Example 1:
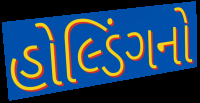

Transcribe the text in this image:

હોલ્ડિંગનો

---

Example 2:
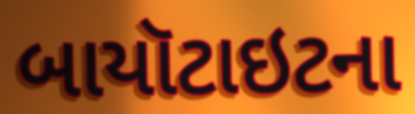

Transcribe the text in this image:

બાયૉટાઇટના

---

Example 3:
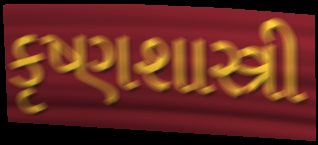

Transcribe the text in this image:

કૃષ્ણશાસ્ત્રી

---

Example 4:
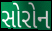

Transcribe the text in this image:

સોરોન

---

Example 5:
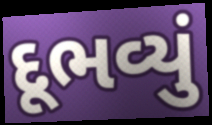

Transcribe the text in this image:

દૂભવ્યું